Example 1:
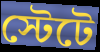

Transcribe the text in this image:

স্টেটে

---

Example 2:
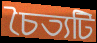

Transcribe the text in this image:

চৈত্যটি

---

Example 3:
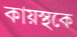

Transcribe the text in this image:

কায়স্থকে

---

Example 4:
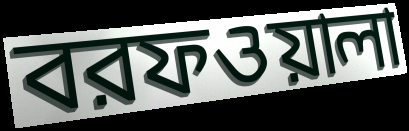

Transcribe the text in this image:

বরফওয়ালা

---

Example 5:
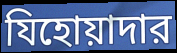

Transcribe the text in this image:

যিহোয়াদার